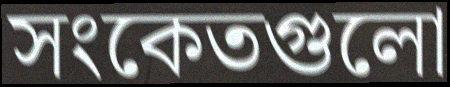
সংকেতগুলো